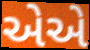
એએ